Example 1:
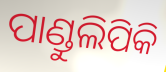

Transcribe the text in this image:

ପାଣ୍ଡୁଲିପିକି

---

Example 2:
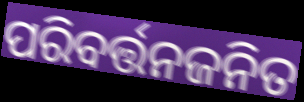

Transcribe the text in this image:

ପରିବର୍ତ୍ତନଜନିତ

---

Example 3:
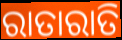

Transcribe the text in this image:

ରାତାରାତି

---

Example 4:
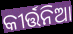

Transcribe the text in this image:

କୀର୍ତ୍ତନିଆ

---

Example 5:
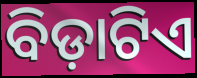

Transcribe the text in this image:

ବିଡ଼ାଟିଏ